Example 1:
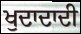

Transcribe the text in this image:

ਖੁਦਾਦਾਦੀ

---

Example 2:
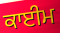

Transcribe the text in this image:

ਕਾਈਮ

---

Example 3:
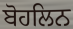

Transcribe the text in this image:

ਬੋਹਲਿਨ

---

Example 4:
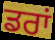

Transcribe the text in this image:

ਡਰਾਂ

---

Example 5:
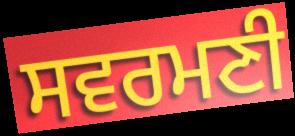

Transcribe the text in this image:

ਸਵਰਮਣੀ